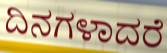
ದಿನಗಳಾದರೆ